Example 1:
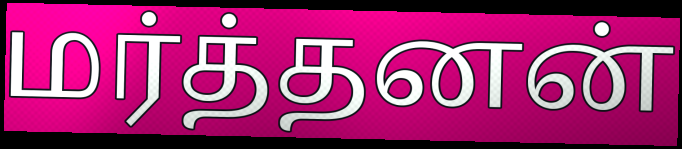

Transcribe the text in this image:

மர்த்தனன்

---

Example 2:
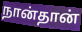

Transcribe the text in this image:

நான்தான்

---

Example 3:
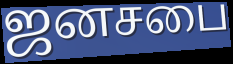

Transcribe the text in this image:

ஜனசபை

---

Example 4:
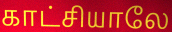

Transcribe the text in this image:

காட்சியாலே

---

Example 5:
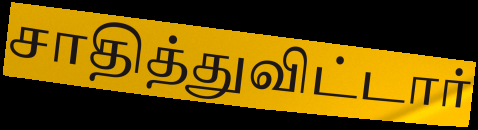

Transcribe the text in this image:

சாதித்துவிட்டார்